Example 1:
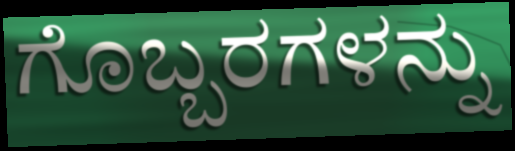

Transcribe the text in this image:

ಗೊಬ್ಬರಗಳನ್ನು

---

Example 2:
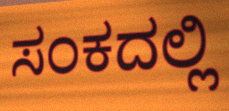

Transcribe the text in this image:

ಸಂಕದಲ್ಲಿ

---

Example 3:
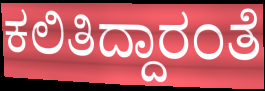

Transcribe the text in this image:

ಕಲಿತಿದ್ದಾರಂತೆ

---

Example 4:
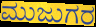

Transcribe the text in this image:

ಮುಜುಗರ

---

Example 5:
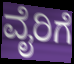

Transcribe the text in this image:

ವೈರಿಗೆ